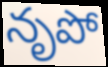
నృపో